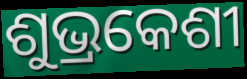
ଶୁଭ୍ରକେଶୀ